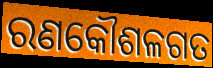
ରଣକୌଶଳଗତ